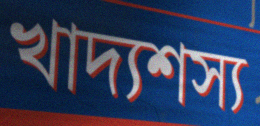
খাদ্যশস্য